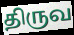
திருவ